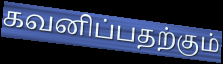
கவனிப்பதற்கும்